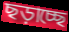
ছড়াচ্ছে